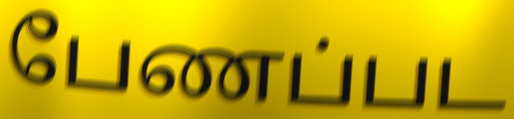
பேணப்பட